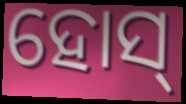
ହୋସ୍